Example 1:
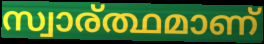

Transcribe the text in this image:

സ്വാര്ത്ഥമാണ്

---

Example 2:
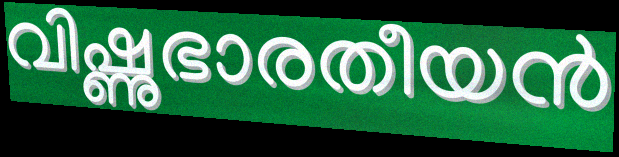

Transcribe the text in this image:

വിഷ്ണുഭാരതീയൻ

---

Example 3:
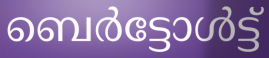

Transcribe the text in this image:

ബെർട്ടോൾട്ട്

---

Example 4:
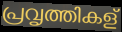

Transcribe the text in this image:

പ്രവൃത്തികള്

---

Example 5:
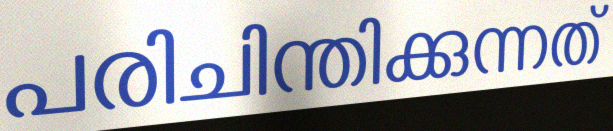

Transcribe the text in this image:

പരിചിന്തിക്കുന്നത്